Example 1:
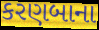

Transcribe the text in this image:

કરણબાના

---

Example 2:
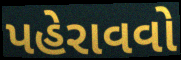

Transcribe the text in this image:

પહેરાવવો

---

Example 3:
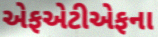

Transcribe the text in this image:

એફએટીએફના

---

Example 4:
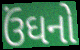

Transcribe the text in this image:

ઉંઘનો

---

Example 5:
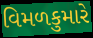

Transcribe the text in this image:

વિમળકુમારે